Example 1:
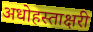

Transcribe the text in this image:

अधोहस्ताक्षरी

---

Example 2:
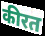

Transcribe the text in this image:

कीरत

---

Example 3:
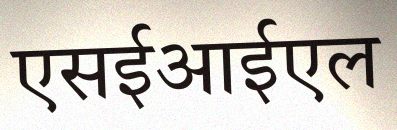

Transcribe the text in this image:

एसईआईएल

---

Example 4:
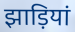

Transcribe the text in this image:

झाड़ियां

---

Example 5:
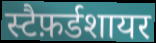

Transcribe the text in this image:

स्टैफ़र्डशायर